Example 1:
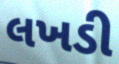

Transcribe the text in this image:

લખડી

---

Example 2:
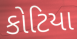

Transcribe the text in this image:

કોટિયા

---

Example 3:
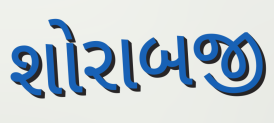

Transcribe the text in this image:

શોરાબજી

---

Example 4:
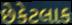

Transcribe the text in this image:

છેકેટલાક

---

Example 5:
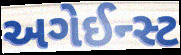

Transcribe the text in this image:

અગેઈન્સ્ટ